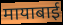
मायाबाई